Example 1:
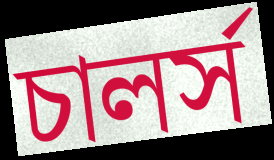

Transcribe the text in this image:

চালর্স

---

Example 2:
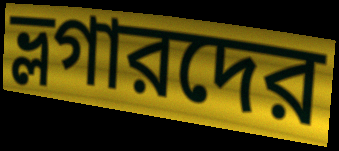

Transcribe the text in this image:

ভ্লগারদের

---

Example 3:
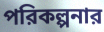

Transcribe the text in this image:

পরিকল্পনার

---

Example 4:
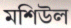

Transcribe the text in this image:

মশিউল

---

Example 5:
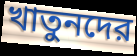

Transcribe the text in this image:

খাতুনদের